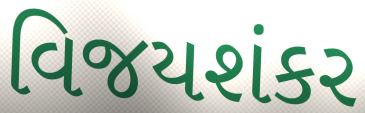
વિજયશંકર